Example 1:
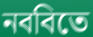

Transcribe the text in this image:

নববিতে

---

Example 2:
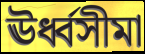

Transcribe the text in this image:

ঊর্ধ্বসীমা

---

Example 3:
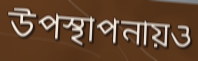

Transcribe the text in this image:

উপস্থাপনায়ও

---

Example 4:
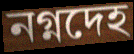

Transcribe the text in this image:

নগ্নদেহ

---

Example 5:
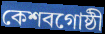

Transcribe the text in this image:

কেশবগোষ্ঠী